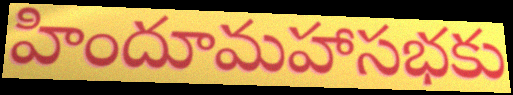
హిందూమహాసభకు